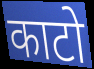
काटो